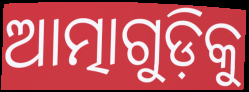
ଆତ୍ମାଗୁଡ଼ିକୁ